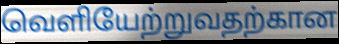
வெளியேற்றுவதற்கான